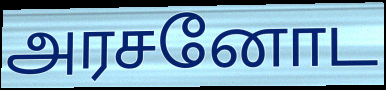
அரசனோட